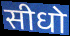
सीधो